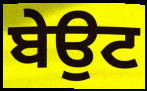
ਬੇਉਟ